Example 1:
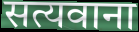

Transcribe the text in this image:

सत्यवाना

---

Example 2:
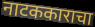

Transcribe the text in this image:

नाटककाराचा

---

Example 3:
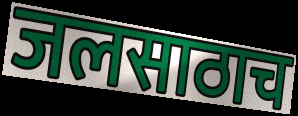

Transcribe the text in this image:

जलसाठाच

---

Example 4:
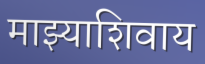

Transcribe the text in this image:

माझ्याशिवाय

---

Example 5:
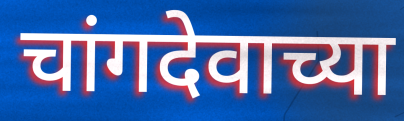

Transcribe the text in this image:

चांगदेवाच्या